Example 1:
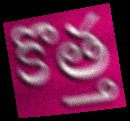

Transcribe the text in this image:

కొత్త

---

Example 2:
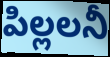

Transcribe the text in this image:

పిల్లలనీ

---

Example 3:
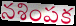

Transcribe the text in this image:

నశింపక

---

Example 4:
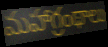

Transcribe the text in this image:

మహాగ్రంథాలు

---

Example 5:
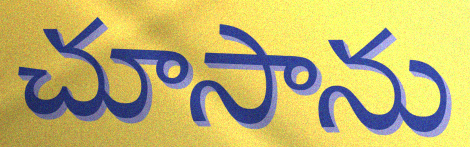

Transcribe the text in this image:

చూసాను